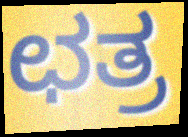
ಛತ್ರ